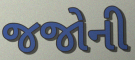
જજોની